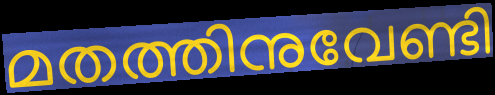
മതത്തിനുവേണ്ടി